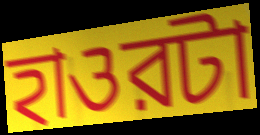
হাওরটা